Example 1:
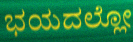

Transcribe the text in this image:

ಭಯದಲ್ಲೋ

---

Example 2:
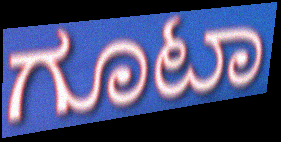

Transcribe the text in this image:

ಗೂಟಾ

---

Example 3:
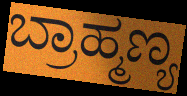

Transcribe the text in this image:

ಬ್ರಾಹ್ಮಣ್ಯ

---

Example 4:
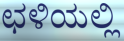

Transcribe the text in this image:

ಛಳಿಯಲ್ಲಿ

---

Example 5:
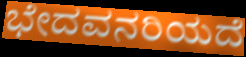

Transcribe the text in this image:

ಭೇದವನರಿಯದೆ